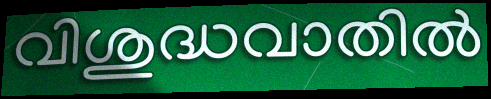
വിശുദ്ധവാതിൽ